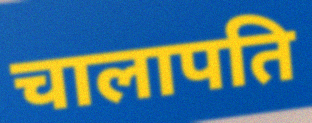
चालापति